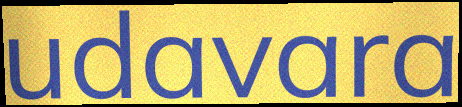
udavara